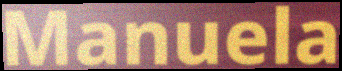
Manuela